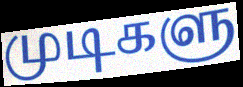
முடிகளு